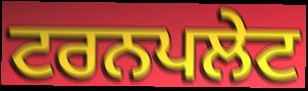
ਟਰਨਪਲੇਟ